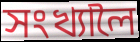
সংখ্যালৈ